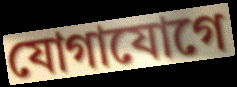
যোগাযোগে